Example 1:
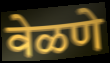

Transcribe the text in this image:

वेळणे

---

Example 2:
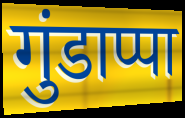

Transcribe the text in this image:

गुंडाप्पा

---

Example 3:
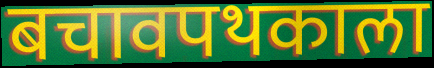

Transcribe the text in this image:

बचावपथकाला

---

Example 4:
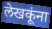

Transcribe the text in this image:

लेखकूंना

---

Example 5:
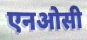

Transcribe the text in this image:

एनओसी